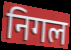
निगल